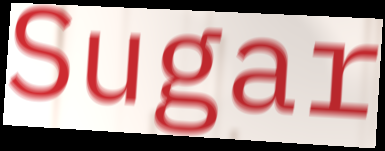
Sugar